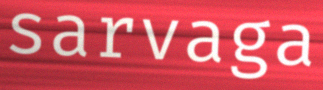
sarvaga